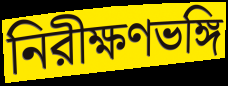
নিরীক্ষণভঙ্গি